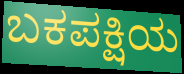
ಬಕಪಕ್ಷಿಯ